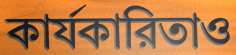
কার্যকারিতাও